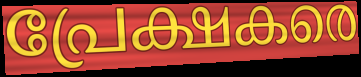
പ്രേക്ഷകരെ